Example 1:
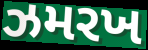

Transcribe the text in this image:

ઝમરખ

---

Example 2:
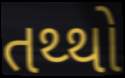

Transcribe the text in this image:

તથ્થો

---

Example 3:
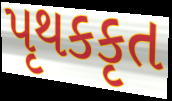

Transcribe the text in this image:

પૃથકકૃત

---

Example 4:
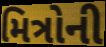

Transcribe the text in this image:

મિત્રોની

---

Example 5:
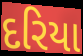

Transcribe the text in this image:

દરિયા